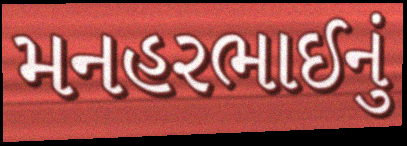
મનહરભાઈનું